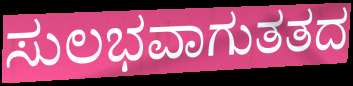
ಸುಲಭವಾಗುತತದ